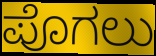
ಪೊಗಲು